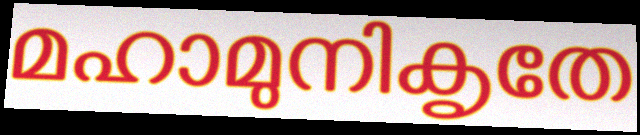
മഹാമുനികൃതേ